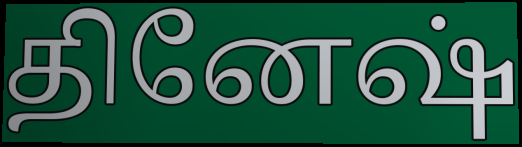
தினேஷ்